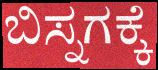
ಬಿಸ್ನಗಕ್ಕೆ